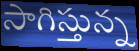
సాగిస్తున్న